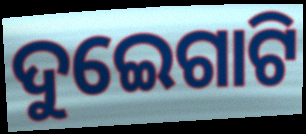
ଦୁଇେଗାଟି